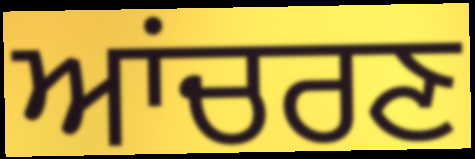
ਆਂਚਰਣ